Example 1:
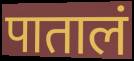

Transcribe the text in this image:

पातालं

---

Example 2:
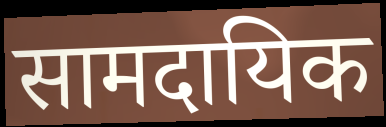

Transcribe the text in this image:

सामदायिक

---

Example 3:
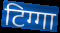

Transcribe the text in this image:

टिग्गा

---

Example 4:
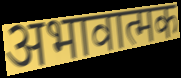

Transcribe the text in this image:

अभावात्मक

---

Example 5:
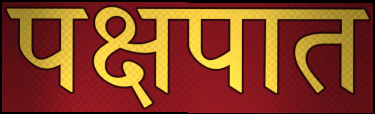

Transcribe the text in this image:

पक्षपात